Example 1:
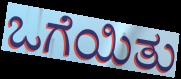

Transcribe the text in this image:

ಒಗೆಯಿತು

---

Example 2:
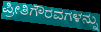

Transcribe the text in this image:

ಪ್ರೀತಿಗೌರವಗಳನ್ನು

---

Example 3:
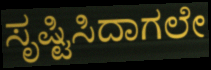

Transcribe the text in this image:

ಸೃಷ್ಟಿಸಿದಾಗಲೇ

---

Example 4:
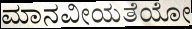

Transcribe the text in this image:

ಮಾನವೀಯತೆಯೋ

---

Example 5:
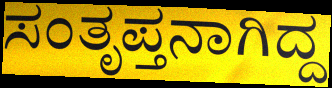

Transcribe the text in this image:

ಸಂತೃಪ್ತನಾಗಿದ್ದ